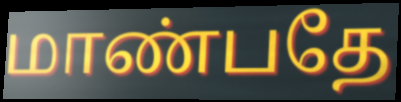
மாண்பதே